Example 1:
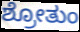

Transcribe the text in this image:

ಶ್ರೋತುಂ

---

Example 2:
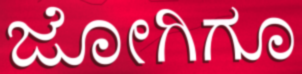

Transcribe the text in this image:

ಜೋಗಿಗೂ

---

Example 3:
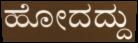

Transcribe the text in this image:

ಹೋದದ್ದು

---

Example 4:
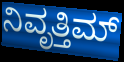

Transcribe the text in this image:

ನಿವೃತ್ತಿಮ್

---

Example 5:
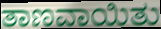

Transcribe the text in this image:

ತಾಣವಾಯಿತು